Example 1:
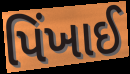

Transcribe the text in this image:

પિંખાઈ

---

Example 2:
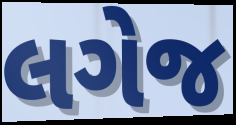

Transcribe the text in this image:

લગેજ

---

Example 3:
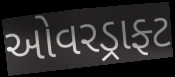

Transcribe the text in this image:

ઓવરડ્રાફ્ટ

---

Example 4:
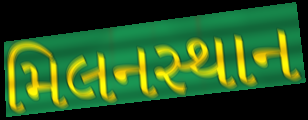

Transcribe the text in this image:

મિલનસ્થાન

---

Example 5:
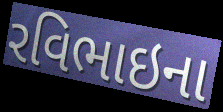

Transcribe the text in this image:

રવિભાઇના